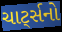
ચાર્ટ્સનો